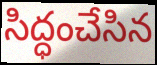
సిద్ధంచేసిన